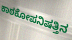
ಕಾಠಕೋಪನಿಷತ್ತಿನ